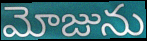
మోజును